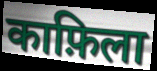
काफ़िला